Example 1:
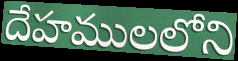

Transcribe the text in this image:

దేహములలోని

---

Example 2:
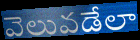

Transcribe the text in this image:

వెలువడేలా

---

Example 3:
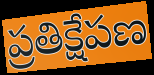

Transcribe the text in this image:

ప్రతిక్షేపణ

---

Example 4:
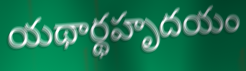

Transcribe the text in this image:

యథార్థహృదయం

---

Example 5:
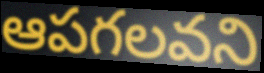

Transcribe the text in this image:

ఆపగలవని